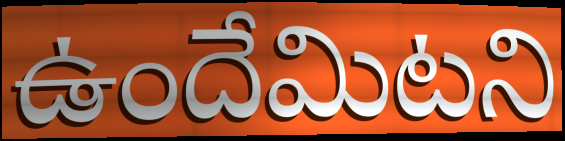
ఉందేమిటని